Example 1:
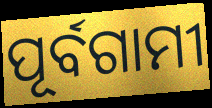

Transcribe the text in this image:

ପୂର୍ବଗାମୀ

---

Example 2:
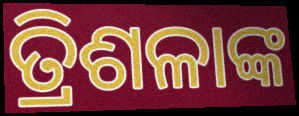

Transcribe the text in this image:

ତ୍ରିଶଳାଙ୍କ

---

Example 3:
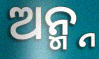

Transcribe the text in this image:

ଅନ୍ମ୍ନ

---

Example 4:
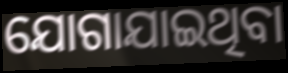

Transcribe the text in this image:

ଯୋଗାଯାଇଥିବା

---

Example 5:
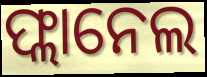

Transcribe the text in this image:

ଫ୍ଲାନେଲ